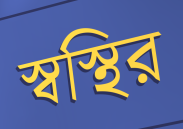
স্বস্থির